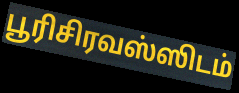
பூரிசிரவஸ்ஸிடம்